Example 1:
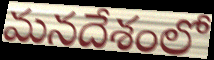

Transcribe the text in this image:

మనదేశంలో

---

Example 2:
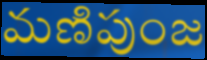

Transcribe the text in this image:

మణిపుంజ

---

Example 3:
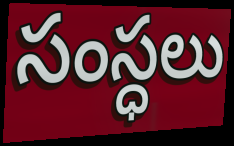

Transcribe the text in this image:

సంస్ధలు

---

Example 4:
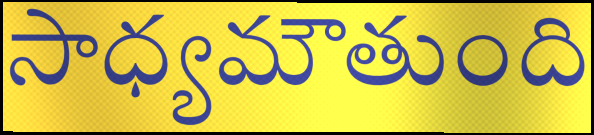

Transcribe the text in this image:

సాధ్యమౌతుంది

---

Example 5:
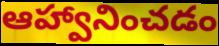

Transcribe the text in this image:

ఆహ్వానించడం